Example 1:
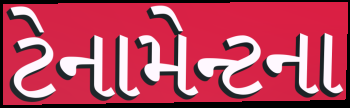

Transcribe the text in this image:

ટેનામેન્ટના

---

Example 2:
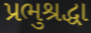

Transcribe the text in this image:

પ્રભુશ્રદ્ધા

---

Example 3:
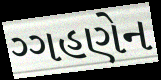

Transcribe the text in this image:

ગ્ગહણેન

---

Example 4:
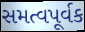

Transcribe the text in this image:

સમત્વપૂર્વક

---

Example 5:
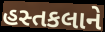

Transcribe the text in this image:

હસ્તકલાને